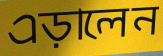
এড়ালেন